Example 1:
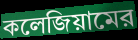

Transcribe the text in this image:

কলেজিয়ামের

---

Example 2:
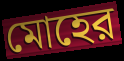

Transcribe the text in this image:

মোহের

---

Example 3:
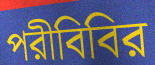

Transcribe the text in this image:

পরীবিবির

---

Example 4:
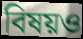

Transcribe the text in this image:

বিষয়ও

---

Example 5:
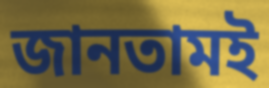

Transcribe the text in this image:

জানতামই